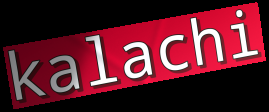
kalachi